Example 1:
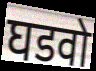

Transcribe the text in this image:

घडवो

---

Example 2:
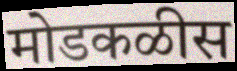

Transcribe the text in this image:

मोडकळीस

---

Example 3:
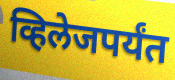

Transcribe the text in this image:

व्हिलेजपर्यंत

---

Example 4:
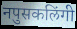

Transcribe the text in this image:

नपुसकलिंगी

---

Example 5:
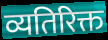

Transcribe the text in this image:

व्यतिरिक्त